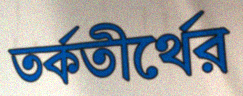
তর্কতীর্থের